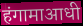
हंगामाआधी